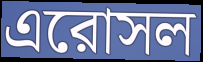
এরোসল